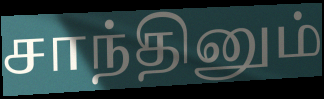
சாந்தினும்